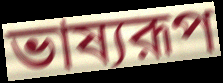
ভাষ্যরূপ